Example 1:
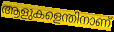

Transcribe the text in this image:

ആളുകളെന്തിനാണ്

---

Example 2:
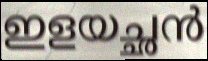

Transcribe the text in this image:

ഇളയച്ഛൻ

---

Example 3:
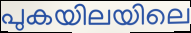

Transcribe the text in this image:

പുകയിലയിലെ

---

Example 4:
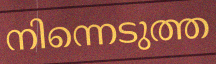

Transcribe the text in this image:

നിന്നെടുത്ത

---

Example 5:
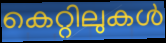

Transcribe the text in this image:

കെറ്റിലുകൾ